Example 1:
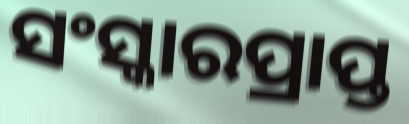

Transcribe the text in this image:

ସଂସ୍କାରପ୍ରାପ୍ତ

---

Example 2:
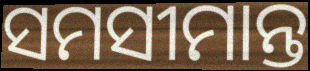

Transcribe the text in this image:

ସମସୀମାନ୍ତ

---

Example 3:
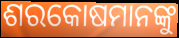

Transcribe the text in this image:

ଶରକୋଷମାନଙ୍କୁ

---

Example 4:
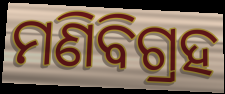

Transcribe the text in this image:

ମଣିବିଗ୍ରହ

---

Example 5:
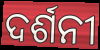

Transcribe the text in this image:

ଦର୍ଶନୀ